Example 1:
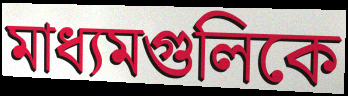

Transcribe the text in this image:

মাধ্যমগুলিকে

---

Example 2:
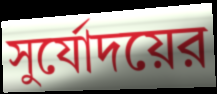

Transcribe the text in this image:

সুর্যোদয়ের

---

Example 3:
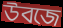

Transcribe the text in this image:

উবজে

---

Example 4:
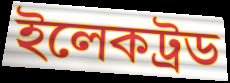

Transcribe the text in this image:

ইলেকট্রড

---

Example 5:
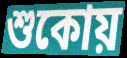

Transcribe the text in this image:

শুকোয়